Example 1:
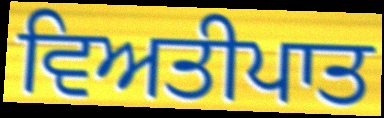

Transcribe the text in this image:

ਵਿਅਤੀਪਾਤ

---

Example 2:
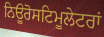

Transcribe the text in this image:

ਨਿਊਰੋਸਟਿਮੂਲੇਟਰਾਂ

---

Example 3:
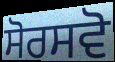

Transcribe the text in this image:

ਸੋਰਸਵੋ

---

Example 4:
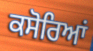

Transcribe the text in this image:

ਕਸੋਰਿਆਂ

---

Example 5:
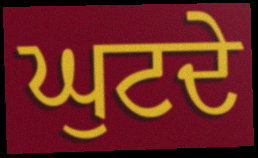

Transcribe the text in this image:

ਘੁਟਦੇ